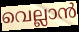
വെല്ലാൻ